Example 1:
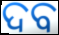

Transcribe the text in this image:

ଦବ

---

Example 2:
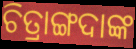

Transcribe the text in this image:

ଚିତ୍ରାଙ୍ଗଦାଙ୍କ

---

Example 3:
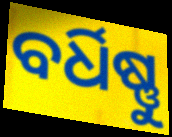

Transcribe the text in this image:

ବର୍ଧିଷ୍ଣୁ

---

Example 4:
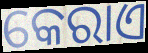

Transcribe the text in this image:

କେରାଏ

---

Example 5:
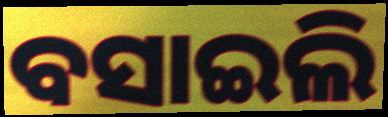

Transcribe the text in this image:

ବସାଇଲି